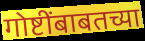
गोष्टींबाबतच्या